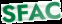
SFAC